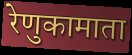
रेणुकामाता